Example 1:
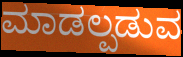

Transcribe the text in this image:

ಮಾಡಲ್ಪಡುವ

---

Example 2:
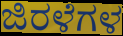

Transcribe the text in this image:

ಜಿರಳೆಗಳ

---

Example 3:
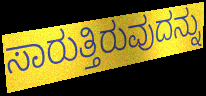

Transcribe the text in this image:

ಸಾರುತ್ತಿರುವುದನ್ನು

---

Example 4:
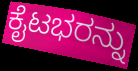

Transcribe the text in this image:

ಕೈಟಭರನ್ನು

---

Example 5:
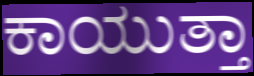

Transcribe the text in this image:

ಕಾಯುತ್ತಾ